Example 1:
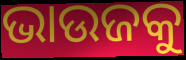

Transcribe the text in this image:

ଭାଉଜକୁ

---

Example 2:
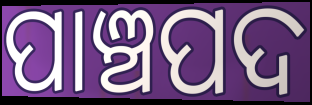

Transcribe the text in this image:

ପାଞ୍ଚପଦ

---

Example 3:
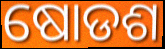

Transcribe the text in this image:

ଷୋଡଶ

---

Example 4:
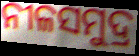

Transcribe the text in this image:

ନୀଳସମୁଦ୍ର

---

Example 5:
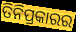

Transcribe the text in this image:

ତିନିପ୍ରକାରର